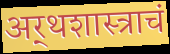
अर्थशास्त्राचं